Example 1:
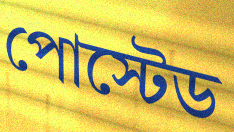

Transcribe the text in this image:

পোস্টেড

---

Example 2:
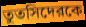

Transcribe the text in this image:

তুতসিদেরকে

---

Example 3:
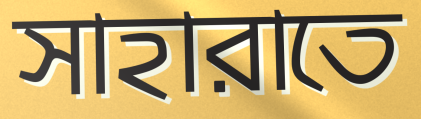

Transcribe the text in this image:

সাহারাতে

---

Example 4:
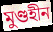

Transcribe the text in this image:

মুণ্ডহীন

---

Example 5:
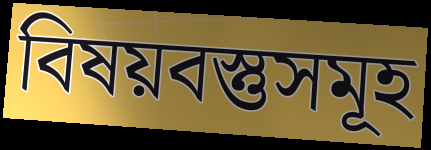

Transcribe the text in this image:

বিষয়বস্তুসমূহ